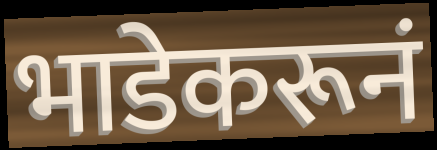
भाडेकरूनं